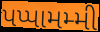
પપ્પામમ્મી